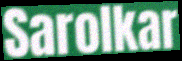
Sarolkar